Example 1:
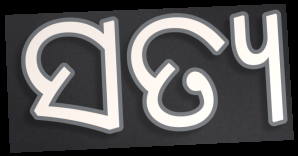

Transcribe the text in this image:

ସତ୍ୟ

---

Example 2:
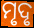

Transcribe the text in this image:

ମୃଦୃ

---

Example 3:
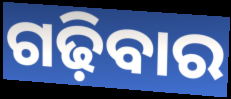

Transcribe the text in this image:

ଗଢ଼ିବାର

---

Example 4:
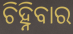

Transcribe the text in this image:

ଚିହ୍ନିବାର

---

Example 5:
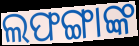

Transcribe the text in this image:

ଲଫଙ୍ଗାଙ୍କ